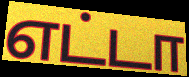
எட்டா